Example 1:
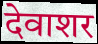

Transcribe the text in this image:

देवाशर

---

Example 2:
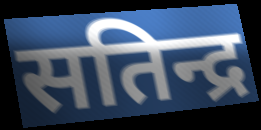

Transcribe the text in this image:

सतिन्द्र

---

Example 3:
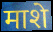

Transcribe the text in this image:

माशे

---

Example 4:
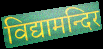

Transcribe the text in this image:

विद्यामन्दिर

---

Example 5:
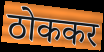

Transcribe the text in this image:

ठोककर